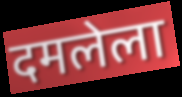
दमलेला